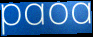
paoa